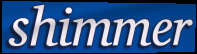
shimmer